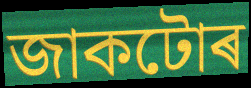
জাকটোৰ